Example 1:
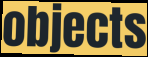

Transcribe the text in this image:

objects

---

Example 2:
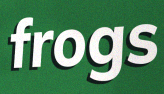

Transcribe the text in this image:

frogs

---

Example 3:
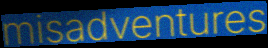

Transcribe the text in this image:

misadventures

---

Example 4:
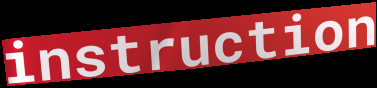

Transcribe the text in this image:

instruction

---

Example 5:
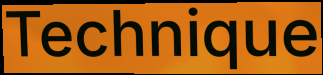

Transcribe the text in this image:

Technique